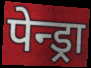
पेन्ड्रा